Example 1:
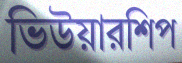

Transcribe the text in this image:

ভিউয়ারশিপ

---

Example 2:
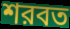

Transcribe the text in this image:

শরবত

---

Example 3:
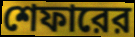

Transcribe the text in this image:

শেফারের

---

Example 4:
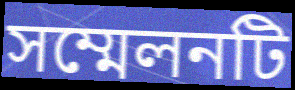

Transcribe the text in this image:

সম্মেলনটি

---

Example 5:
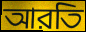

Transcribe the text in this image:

আরতি